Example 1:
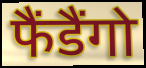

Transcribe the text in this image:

फैंडैंगो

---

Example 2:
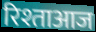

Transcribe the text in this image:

रिश्ताआज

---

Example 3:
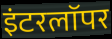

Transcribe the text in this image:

इंटरलॉपर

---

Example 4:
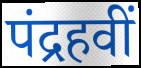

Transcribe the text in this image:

पंद्रहवीं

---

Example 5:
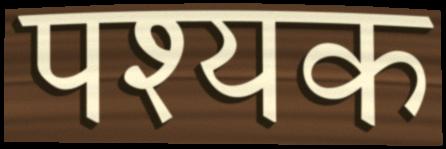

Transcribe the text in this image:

पश्यक